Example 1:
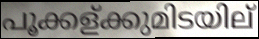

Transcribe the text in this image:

പൂക്കള്ക്കുമിടയില്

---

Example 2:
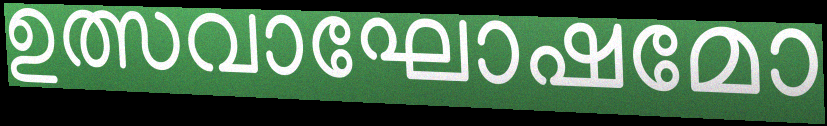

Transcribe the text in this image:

ഉത്സവാഘോഷമോ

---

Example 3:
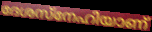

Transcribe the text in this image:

ദേശസ്നേഹിയാണ്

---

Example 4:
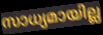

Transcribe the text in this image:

സാധ്യമായില്ല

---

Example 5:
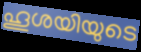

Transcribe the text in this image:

ഹൂശയിയുടെ